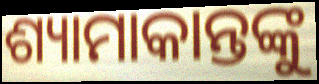
ଶ୍ୟାମାକାନ୍ତଙ୍କୁ